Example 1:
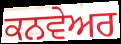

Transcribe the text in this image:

ਕਨਵੇਅਰ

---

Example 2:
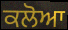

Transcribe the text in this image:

ਕਲੋਆ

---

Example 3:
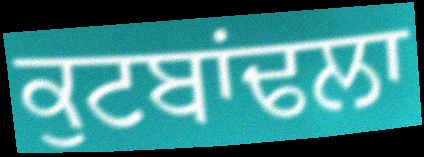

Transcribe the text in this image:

ਕੁਟਬਾਂਢਲਾ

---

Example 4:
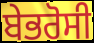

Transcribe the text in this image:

ਬੇਭਰੋਸੀ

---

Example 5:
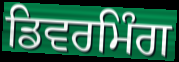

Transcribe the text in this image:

ਡਿਵਰਮਿੰਗ